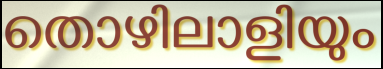
തൊഴിലാളിയും